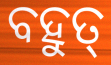
ବହୁତ୍